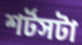
শর্টসটা